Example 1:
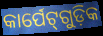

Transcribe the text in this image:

କାର୍ପେଟ୍‌ଗୁଡ଼ିକ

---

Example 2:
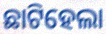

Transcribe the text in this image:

ଛାଟିହେଲା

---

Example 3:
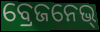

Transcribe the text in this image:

ବ୍ରେଜନେଭ୍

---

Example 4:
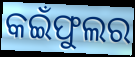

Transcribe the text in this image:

କଇଁଫୁଲର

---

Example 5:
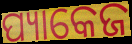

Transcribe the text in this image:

ପ୍ୟାକେଜ